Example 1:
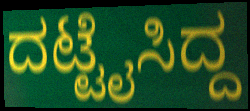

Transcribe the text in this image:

ದಟ್ಟೈಸಿದ್ದ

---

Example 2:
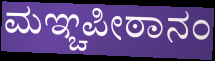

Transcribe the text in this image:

ಮಞ್ಚಪೀಠಾನಂ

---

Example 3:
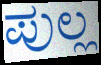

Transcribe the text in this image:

ಪುಲ್ಲ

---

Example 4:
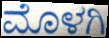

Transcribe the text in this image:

ಮೊಳಗಿ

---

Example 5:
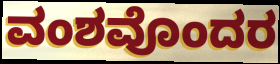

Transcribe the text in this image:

ವಂಶವೊಂದರ